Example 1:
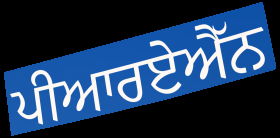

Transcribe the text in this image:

ਪੀਆਰਏਐੱਨ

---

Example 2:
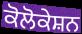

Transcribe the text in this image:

ਕੋਲੋਕੇਸ਼ਨ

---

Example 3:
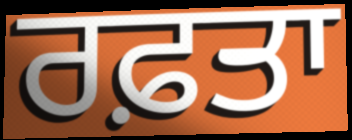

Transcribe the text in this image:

ਰਫ਼ਤਾ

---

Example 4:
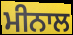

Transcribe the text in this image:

ਮੀਨਾਲ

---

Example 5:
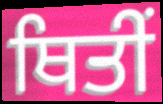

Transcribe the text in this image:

ਥਿਤੀਂ